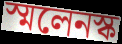
স্মলেনস্ক